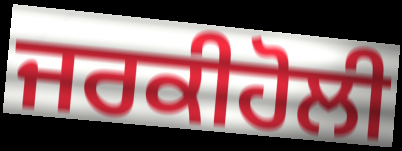
ਜਰਕੀਹੋਲੀ